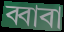
ব্বাবা